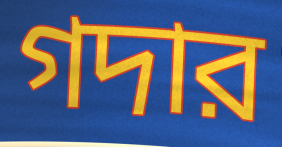
গদার